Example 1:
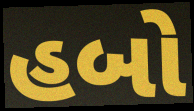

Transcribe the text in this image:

હબો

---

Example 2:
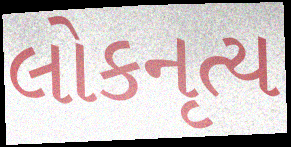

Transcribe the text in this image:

લોકનૃત્ય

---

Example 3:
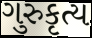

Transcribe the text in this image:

ગુરુકૃત્ય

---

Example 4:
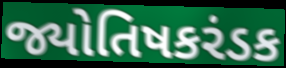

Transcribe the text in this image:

જ્યોતિષકરંડક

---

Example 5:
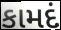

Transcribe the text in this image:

કામદં